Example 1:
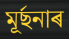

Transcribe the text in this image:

মূৰ্ছনাৰ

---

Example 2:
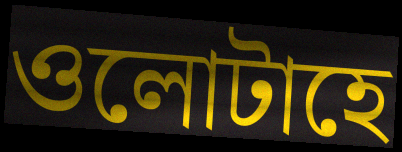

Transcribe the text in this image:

ওলোটাহে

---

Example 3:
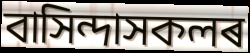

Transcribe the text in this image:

বাসিন্দাসকলৰ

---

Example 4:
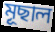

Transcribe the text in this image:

মূছাল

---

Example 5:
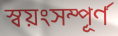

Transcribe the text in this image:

স্বয়ংসম্পূৰ্ণ